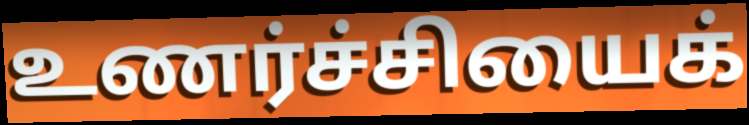
உணர்ச்சியைக்